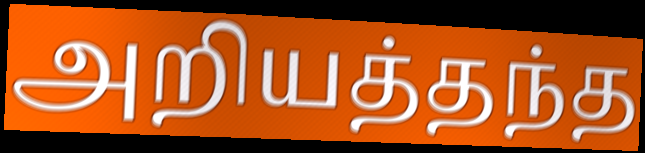
அறியத்தந்த